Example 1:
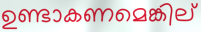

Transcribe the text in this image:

ഉണ്ടാകണമെങ്കില്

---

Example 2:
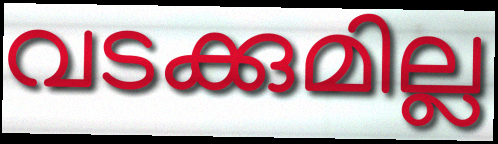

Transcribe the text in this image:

വടക്കുമില്ല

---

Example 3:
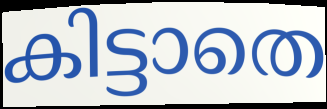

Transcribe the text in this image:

കിട്ടാതെ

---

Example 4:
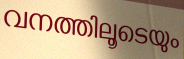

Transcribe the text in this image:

വനത്തിലൂടെയും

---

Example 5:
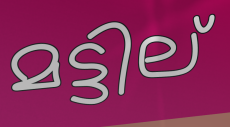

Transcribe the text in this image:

മട്ടില്